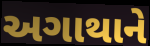
અગાથાને